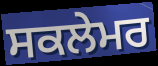
ਸਕਲੇਮਰ